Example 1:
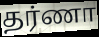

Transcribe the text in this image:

தர்ணா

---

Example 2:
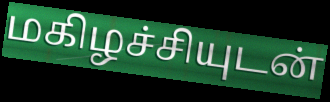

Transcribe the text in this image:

மகிழச்சியுடன்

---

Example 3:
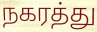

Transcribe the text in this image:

நகரத்து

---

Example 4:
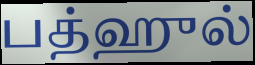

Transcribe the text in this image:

பத்ஹுல்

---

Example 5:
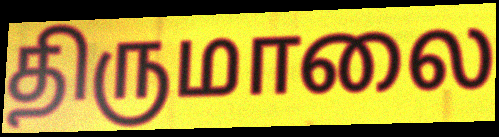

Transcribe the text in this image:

திருமாலை